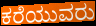
ಕರೆಯುವರು